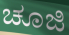
ಚೂಜಿ